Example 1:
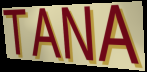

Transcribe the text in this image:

TANA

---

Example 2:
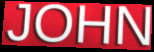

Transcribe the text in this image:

JOHN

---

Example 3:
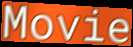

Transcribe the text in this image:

Movie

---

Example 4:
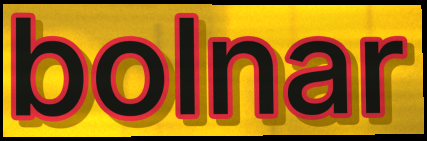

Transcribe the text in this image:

bolnar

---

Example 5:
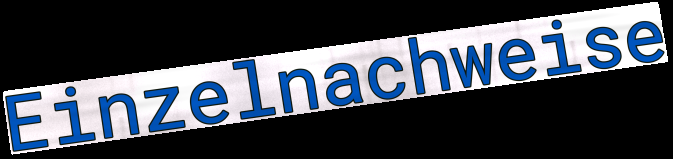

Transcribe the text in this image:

Einzelnachweise